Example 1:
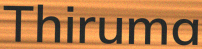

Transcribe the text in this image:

Thiruma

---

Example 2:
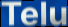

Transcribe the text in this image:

Telu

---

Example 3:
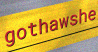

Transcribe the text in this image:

gothawshe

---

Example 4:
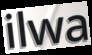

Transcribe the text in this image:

ilwa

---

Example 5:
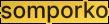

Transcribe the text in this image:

somporko